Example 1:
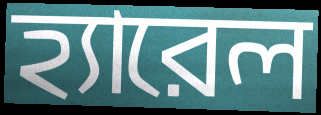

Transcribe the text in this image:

হ্যারেল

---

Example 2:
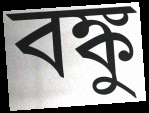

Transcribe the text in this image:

বঙ্কু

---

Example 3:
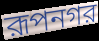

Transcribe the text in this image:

রূপনগর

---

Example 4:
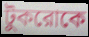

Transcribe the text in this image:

টুকরোকে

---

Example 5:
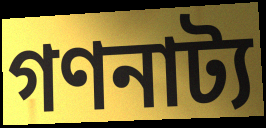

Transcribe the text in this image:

গণনাট্য